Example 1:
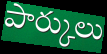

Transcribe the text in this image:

పార్కులు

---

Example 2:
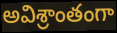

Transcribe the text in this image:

అవిశ్రాంతంగా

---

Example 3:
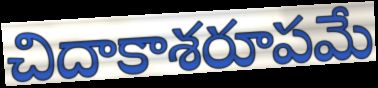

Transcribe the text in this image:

చిదాకాశరూపమే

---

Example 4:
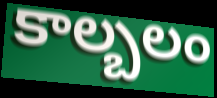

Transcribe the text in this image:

కాల్బలం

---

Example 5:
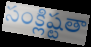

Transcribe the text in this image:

సంక్లిష్టతా